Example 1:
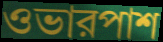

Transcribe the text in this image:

ওভারপাশ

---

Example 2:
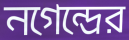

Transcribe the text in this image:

নগেন্দ্রের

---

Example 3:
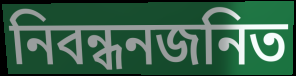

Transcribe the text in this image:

নিবন্ধনজনিত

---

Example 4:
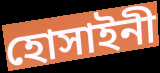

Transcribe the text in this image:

হোসাইনী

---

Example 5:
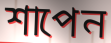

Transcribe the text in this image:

শাপেন